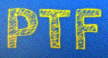
PTF